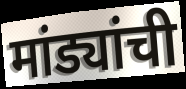
मांड्यांची